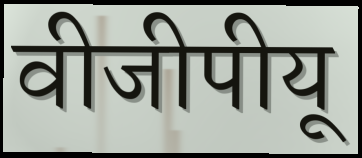
वीजीपीयू